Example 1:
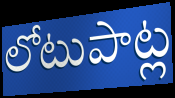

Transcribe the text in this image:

లోటుపాట్ల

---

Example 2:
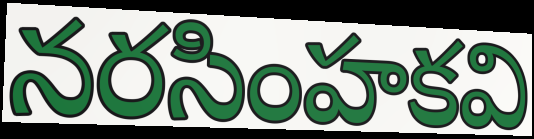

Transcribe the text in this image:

నరసింహకవి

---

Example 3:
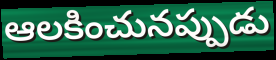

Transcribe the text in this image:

ఆలకించునప్పుడు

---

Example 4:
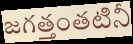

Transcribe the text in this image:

జగత్తంతటినీ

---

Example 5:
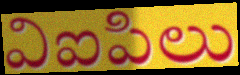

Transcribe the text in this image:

విఐపిలు